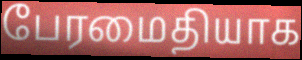
பேரமைதியாக